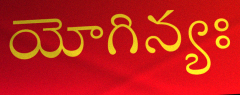
యోగిన్యః